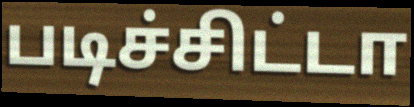
படிச்சிட்டா